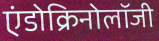
एंडोक्रिनोलॉजी